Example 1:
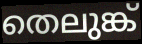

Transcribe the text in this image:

തെലുങ്ക്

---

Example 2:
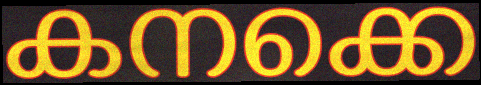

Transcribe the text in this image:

കനക്കെ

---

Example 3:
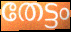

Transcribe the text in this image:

തേട്ടം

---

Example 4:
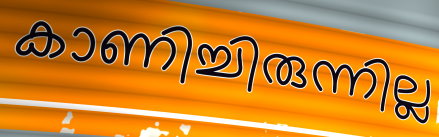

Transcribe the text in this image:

കാണിച്ചിരുന്നില്ല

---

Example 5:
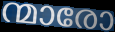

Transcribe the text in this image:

ന്മാരോ